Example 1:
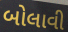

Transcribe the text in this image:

બોલાવી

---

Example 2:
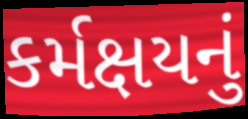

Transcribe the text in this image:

કર્મક્ષયનું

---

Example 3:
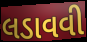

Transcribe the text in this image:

લડાવવી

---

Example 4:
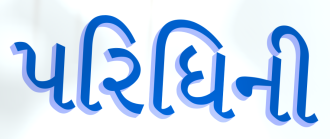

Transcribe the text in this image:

પરિધિની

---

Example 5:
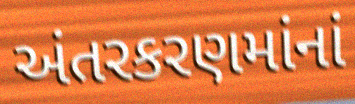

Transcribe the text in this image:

અંતરકરણમાંનાં